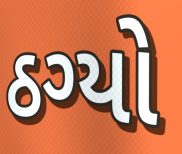
ઠગ્યો